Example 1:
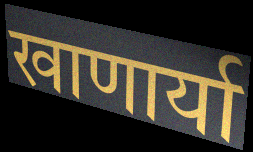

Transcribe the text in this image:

खाणार्या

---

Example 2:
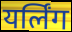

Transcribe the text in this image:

यर्लिंग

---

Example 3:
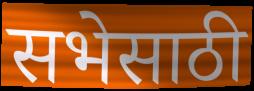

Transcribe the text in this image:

सभेसाठी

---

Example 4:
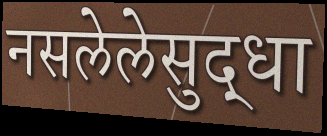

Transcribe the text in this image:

नसलेलेसुद्धा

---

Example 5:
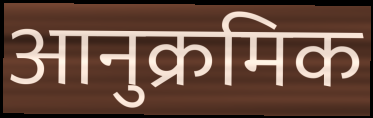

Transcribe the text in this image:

आनुक्रमिक